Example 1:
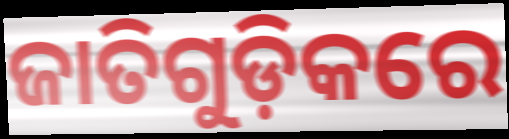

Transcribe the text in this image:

ଜାତିଗୁଡ଼ିକରେ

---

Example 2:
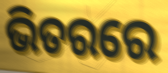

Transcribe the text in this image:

ଭିତରରେ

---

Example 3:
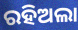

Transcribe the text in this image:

ରହିଅଲା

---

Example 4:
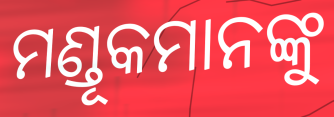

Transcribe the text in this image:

ମଣ୍ଡୂକମାନଙ୍କୁ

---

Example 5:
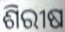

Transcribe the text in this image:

ଶିରୀଷ